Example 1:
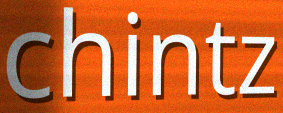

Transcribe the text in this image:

chintz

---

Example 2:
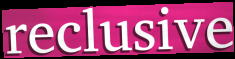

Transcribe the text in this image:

reclusive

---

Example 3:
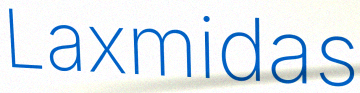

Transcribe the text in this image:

Laxmidas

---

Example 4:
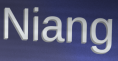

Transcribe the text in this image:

Niang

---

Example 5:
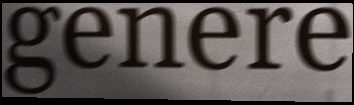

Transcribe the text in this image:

genere